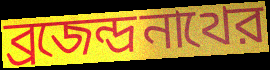
ব্রজেন্দ্রনাথের